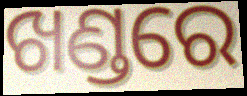
ଖଣ୍ଡରେ